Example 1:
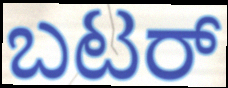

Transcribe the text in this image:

ಬಟರ್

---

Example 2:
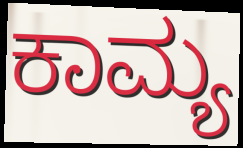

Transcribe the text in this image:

ಕಾಮ್ಯ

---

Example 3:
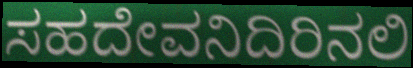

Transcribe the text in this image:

ಸಹದೇವನಿದಿರಿನಲಿ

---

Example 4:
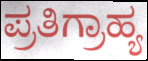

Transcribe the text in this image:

ಪ್ರತಿಗ್ರಾಹ್ಯ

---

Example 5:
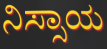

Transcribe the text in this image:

ನಿಸ್ಸಾಯ